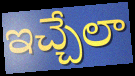
ఇచ్చేలా